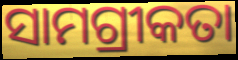
ସାମଗ୍ରୀକତା